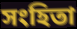
সংহিতা